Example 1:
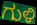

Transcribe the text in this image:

ಗುಳಿ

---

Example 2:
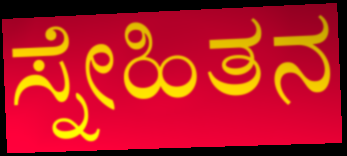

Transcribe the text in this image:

ಸ್ನೇಹಿತನ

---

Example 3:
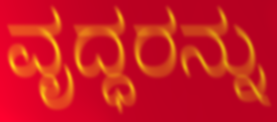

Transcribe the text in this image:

ವೃದ್ಧರನ್ನು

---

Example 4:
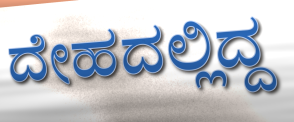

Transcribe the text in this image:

ದೇಹದಲ್ಲಿದ್ದ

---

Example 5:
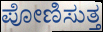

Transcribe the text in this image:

ಪೋಣಿಸುತ್ತ